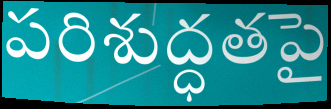
పరిశుద్ధతపై